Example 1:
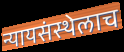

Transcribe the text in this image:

न्यायसंस्थेलाच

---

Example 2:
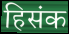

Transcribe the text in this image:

हिसंक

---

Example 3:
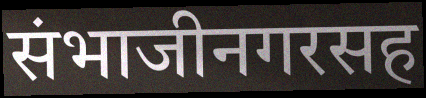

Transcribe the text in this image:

संभाजीनगरसह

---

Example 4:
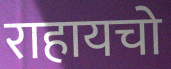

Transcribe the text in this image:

राहायचो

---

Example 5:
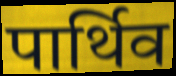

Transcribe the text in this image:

पार्थिव